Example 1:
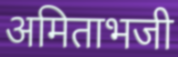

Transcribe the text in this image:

अमिताभजी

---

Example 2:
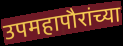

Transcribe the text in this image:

उपमहापौरांच्या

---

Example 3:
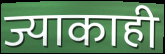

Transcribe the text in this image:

ज्याकाही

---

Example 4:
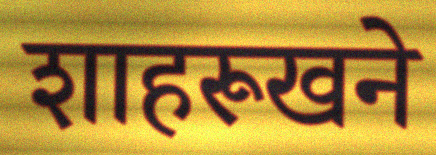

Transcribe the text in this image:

शाहरूखने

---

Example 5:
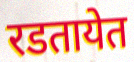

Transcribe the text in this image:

रडतायेत